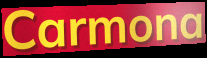
Carmona